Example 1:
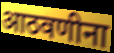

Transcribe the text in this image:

आठवणीना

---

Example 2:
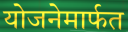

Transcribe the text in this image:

योजनेमार्फत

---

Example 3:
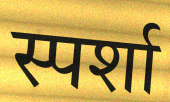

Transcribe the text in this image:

स्पर्शा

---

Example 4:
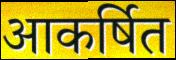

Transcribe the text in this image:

आकर्षित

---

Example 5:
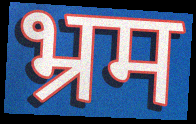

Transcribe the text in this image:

भ्रम